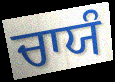
ਚਾਯੰ